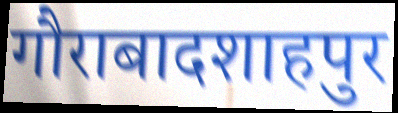
गौराबादशाहपुर